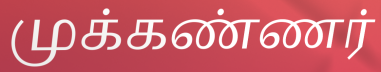
முக்கண்ணர்